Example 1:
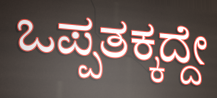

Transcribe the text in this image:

ಒಪ್ಪತಕ್ಕದ್ದೇ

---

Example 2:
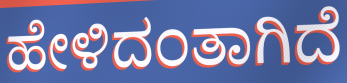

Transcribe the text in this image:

ಹೇಳಿದಂತಾಗಿದೆ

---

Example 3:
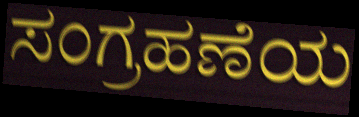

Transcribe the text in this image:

ಸಂಗ್ರಹಣೆಯ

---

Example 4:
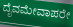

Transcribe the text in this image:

ದೈವಮೇವಾಪರೇ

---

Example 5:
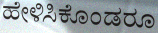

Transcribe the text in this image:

ಹೇಳಿಸಿಕೊಂಡರೂ